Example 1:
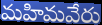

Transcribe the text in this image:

మహిమవేరు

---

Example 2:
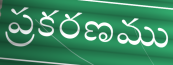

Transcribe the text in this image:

ప్రకరణము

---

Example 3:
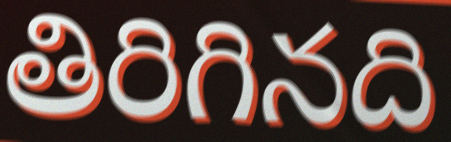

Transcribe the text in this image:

తిరిగినది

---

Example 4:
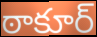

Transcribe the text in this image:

ఠాకూర్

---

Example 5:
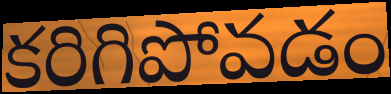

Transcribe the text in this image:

కరిగిపోవడం